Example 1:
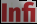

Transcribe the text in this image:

Infi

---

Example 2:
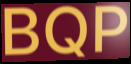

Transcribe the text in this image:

BQP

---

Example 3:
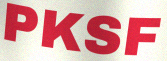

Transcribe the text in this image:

PKSF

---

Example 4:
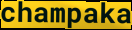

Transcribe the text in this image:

champaka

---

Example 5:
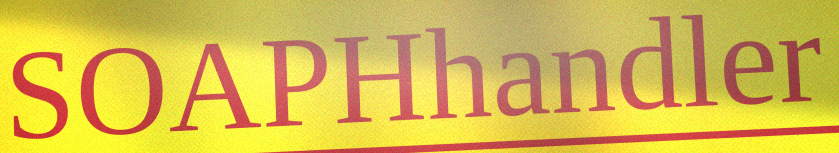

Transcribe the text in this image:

SOAPHhandler